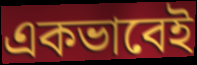
একভাবেই